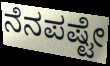
ನೆನಪಷ್ಟೇ